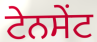
ਟੇਨਸੇਂਟ